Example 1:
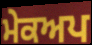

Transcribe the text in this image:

ਮੇਕਅਪ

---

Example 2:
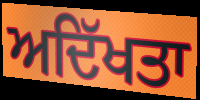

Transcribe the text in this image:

ਅਦਿੱਖਤਾ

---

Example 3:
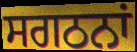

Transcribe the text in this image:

ਸਗਠਨਾਂ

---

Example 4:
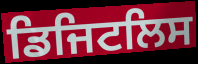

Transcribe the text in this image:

ਡਿਜਿਟਲਿਸ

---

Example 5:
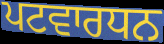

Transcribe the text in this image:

ਪਟਵਾਰਧਨ